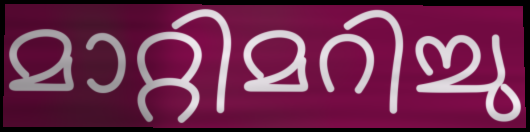
മാറ്റിമറിച്ചു